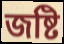
জষ্টি